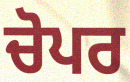
ਚੋਪਰ